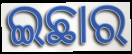
ଇଛାର